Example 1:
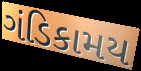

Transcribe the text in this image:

ગંડિકામય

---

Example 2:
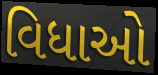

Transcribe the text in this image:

વિધાઓ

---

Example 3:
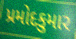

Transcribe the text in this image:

પ્રમોદકુમાર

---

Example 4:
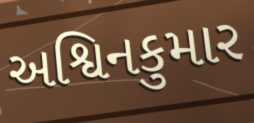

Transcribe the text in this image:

અશ્વિનકુમાર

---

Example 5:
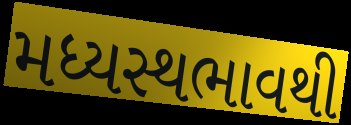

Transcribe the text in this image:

મધ્યસ્થભાવથી